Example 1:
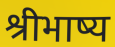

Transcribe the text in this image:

श्रीभाष्य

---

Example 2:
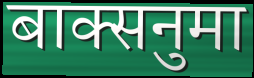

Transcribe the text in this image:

बाक्सनुमा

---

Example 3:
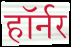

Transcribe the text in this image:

हॉर्नर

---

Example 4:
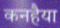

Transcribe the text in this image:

कनहैया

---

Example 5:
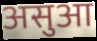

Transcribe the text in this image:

असुआ